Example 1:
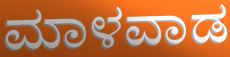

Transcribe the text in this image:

ಮಾಳವಾಡ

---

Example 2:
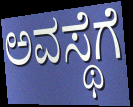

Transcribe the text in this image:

ಅವಸ್ಥೆಗೆ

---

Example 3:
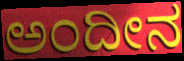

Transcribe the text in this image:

ಅಂದೀನ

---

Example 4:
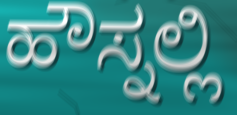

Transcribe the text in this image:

ಹೌಸ್ನಲ್ಲಿ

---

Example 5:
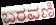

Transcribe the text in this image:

ಬರವಣಿ